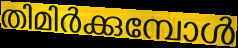
തിമിർക്കുമ്പോൾ